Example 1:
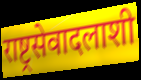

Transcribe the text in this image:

राष्ट्रसेवादलाशी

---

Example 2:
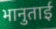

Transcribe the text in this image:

भानुताई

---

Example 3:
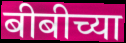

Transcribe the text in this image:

बीबीच्या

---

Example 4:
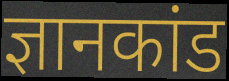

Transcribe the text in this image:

ज्ञानकांड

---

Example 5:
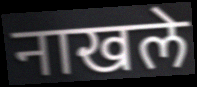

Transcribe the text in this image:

नाखले